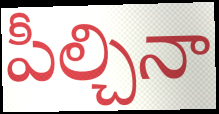
పీల్చినా